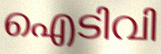
ഐടിവി